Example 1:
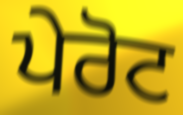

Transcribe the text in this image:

ਪੇਰੋਟ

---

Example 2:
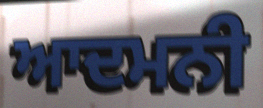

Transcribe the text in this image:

ਆਦਮਨੀ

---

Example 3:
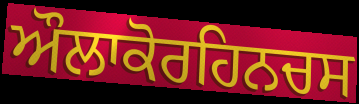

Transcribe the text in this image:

ਔਲਾਕੋਰਹਿਨਚਸ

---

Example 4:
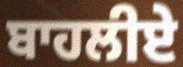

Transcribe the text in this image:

ਬਾਹਲੀਏ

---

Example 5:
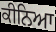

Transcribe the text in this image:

ਕੀਨਿਆ